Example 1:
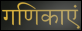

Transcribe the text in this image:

गणिकाएं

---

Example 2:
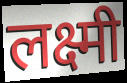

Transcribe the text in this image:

लक्ष्मी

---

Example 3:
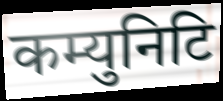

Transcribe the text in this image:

कम्युनिटि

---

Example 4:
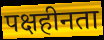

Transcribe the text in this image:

पक्षहीनता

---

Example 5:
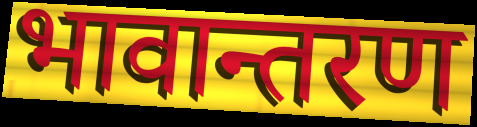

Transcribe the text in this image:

भावान्तरण